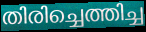
തിരിച്ചെത്തിച്ച